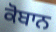
ਕੋਬਾਨ